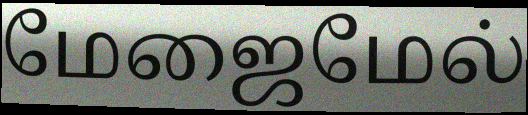
மேஜைமேல்